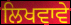
ਲਿਖਵਾਵੇ